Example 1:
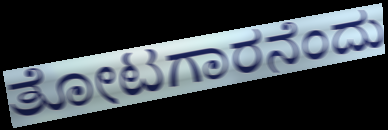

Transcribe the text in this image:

ತೋಟಗಾರನೆಂದು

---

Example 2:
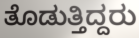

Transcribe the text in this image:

ತೊಡುತ್ತಿದ್ದರು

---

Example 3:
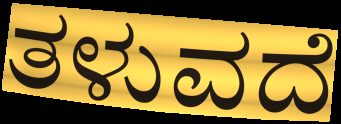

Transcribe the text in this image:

ತಳುವದೆ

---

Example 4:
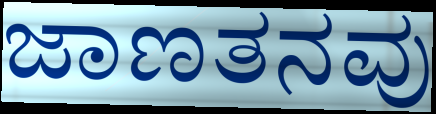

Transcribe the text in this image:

ಜಾಣತನವು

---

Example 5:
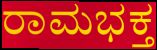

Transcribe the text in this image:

ರಾಮಭಕ್ತ